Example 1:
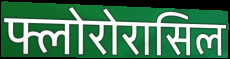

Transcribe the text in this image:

फ्लोरोरासिल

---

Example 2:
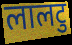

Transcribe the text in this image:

लालटु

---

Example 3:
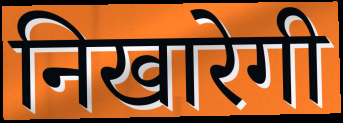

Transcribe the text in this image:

निखारेगी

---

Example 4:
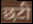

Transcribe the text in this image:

छटी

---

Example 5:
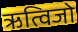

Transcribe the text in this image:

ऋत्विजो